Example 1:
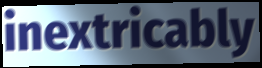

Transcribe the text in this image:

inextricably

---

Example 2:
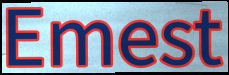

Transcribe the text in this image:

Emest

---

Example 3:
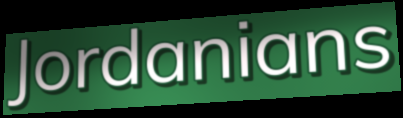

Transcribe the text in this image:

Jordanians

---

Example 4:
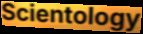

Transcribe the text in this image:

Scientology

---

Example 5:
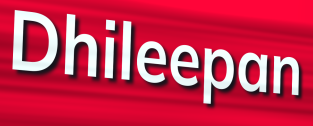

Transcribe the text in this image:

Dhileepan